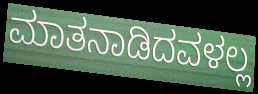
ಮಾತನಾಡಿದವಳಲ್ಲ